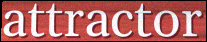
attractor